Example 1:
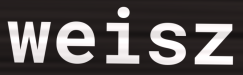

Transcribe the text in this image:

weisz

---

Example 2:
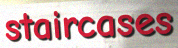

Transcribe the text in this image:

staircases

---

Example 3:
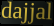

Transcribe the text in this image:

dajjal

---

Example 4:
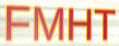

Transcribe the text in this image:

FMHT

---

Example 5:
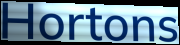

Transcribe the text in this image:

Hortons